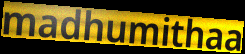
madhumithaa